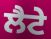
ਲੈਟੇ